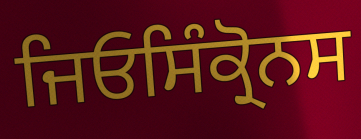
ਜਿਓਸਿੰਕ੍ਰੋਨਸ